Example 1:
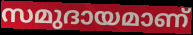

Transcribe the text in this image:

സമുദായമാണ്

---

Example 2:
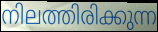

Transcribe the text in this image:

നിലത്തിരിക്കുന്ന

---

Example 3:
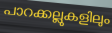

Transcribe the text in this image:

പാറക്കല്ലുകളിലും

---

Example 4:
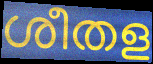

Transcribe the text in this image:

ശീതള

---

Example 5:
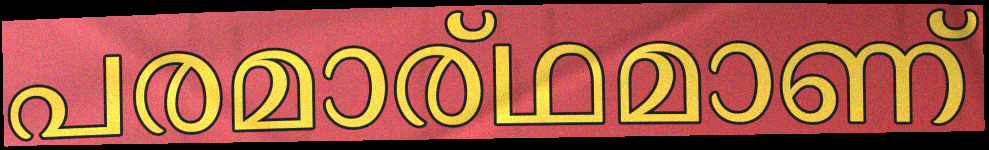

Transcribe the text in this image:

പരമാര്ഥമാണ്